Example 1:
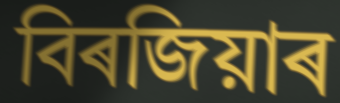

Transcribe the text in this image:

বিৰজিয়াৰ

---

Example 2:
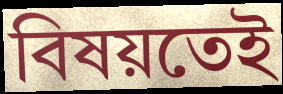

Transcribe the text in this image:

বিষয়তেই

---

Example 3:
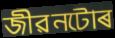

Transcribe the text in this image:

জীৱনটোৰ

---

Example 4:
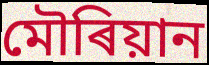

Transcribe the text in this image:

মৌৰিয়ান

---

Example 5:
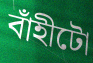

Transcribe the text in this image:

বাঁহীটো